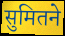
सुमितने